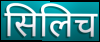
सिलिच